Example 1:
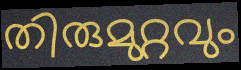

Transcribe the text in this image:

തിരുമുറ്റവും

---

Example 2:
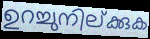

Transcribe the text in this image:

ഉറച്ചുനില്ക്കുക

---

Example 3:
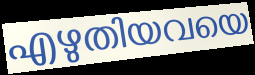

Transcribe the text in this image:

എഴുതിയവയെ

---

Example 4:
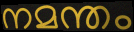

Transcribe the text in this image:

നമന്തം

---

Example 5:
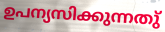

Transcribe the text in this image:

ഉപന്യസിക്കുന്നതു്